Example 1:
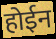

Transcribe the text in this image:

होईन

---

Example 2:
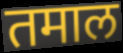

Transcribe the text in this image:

तमाल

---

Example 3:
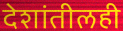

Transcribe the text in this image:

देशांतीलही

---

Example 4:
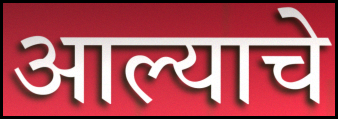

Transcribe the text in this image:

आल्याचे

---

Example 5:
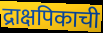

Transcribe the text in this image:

द्राक्षपिकाची